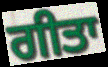
ਗੀਤਾ